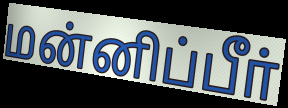
மன்னிப்பீர்